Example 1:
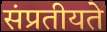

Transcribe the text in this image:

संप्रतीयते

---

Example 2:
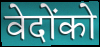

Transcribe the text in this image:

वेदोंको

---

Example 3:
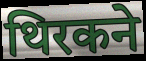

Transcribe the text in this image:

थिरकने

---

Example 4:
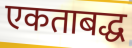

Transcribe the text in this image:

एकताबद्ध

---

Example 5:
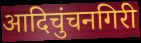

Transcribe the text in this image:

आदिचुंचनगिरी